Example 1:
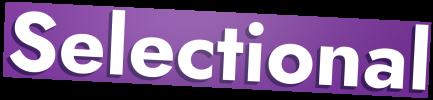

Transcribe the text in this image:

Selectional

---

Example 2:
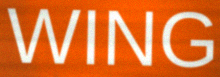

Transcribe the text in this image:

WING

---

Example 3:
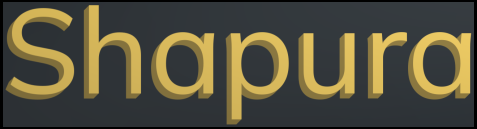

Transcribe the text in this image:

Shapura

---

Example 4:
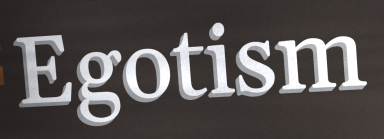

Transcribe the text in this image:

Egotism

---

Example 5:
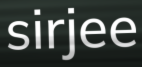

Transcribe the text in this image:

sirjee